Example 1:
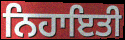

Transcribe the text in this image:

ਨਿਹਾਇਤੀ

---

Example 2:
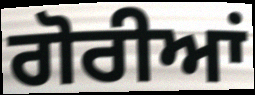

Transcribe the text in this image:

ਗੋਰੀਆਂ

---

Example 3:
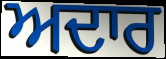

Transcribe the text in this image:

ਅਦਾਰ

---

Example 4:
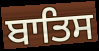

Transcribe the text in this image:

ਬਾਤਿਸ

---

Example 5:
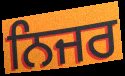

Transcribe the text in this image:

ਨਿਜਰ